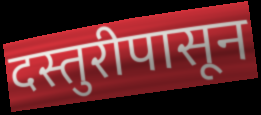
दस्तुरीपासून